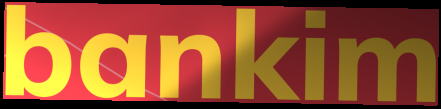
bankim